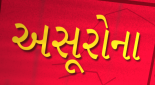
અસૂરોના